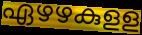
ഏഴഴകുളള